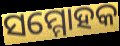
ସମ୍ମୋହକ